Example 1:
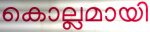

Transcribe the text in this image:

കൊല്ലമായി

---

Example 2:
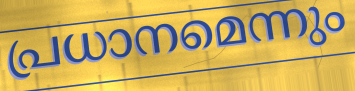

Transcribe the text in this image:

പ്രധാനമെന്നും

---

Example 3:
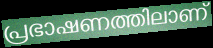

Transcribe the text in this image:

പ്രഭാഷണത്തിലാണ്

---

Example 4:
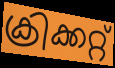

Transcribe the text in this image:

ക്രിക്കറ്റ്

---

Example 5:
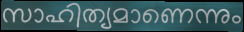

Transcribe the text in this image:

സാഹിത്യമാണെന്നും